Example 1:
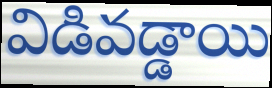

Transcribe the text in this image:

విడివడ్డాయి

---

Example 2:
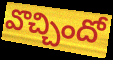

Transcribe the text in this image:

వొచ్చిందో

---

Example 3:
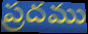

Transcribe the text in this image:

ప్రదము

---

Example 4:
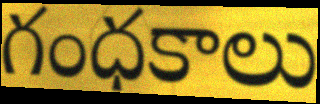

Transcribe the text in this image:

గంధకాలు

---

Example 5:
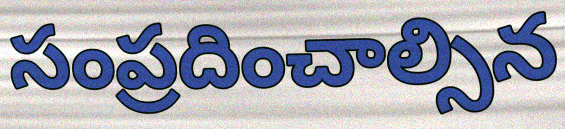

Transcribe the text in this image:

సంప్రదించాల్సిన